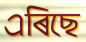
এৰিছে